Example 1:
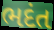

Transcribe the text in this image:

ભદંત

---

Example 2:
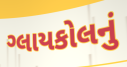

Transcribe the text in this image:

ગ્લાયકોલનું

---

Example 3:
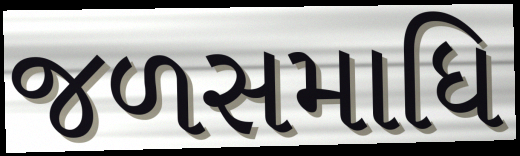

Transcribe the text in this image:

જળસમાધિ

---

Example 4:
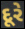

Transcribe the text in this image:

દૂરે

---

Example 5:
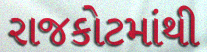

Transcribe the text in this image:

રાજકોટમાંથી